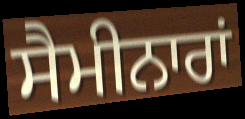
ਸੈਮੀਨਾਰਾਂ